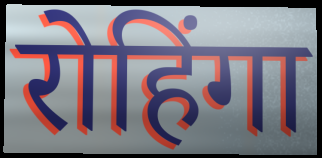
रोहिंगा